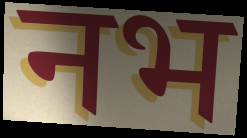
नभ